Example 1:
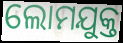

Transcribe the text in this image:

ଲୋମଯୁକ୍ତ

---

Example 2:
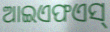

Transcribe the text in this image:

ଆଇଏଫଏସ୍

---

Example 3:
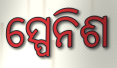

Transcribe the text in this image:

ସ୍ପେନିଶ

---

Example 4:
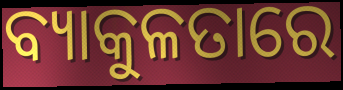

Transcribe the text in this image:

ବ୍ୟାକୁଳତାରେ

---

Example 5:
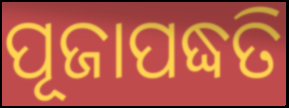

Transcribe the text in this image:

ପୂଜାପଦ୍ଧତି